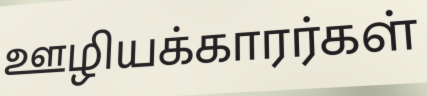
ஊழியக்காரர்கள்